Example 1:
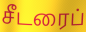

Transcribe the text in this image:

சீடரைப்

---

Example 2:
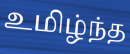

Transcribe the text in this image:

உமிழ்ந்த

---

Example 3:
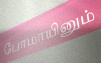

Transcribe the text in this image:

போமாயினும்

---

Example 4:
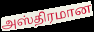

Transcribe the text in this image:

அஸ்திரமான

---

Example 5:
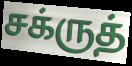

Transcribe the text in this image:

சக்ருத்